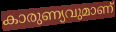
കാരുണ്യവുമാണ്